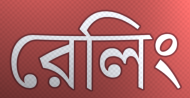
রেলিং